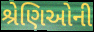
શ્રેણિઓની